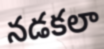
నడకలా